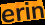
erin